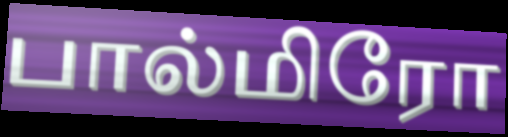
பால்மிரோ